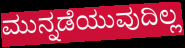
ಮುನ್ನಡೆಯುವುದಿಲ್ಲ